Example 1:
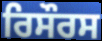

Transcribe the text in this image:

ਰਿਸੌਰਸ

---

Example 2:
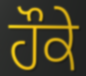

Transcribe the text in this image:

ਹੌਕੇ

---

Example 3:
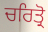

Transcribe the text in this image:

ਚਰਿਤ੍ਰੋ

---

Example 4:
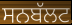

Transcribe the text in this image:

ਸਨਬੱਲਟ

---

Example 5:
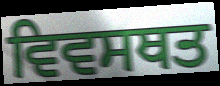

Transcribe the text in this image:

ਵਿਵਸਥਤ